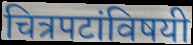
चित्रपटांविषयी